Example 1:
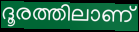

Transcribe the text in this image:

ദൂരത്തിലാണ്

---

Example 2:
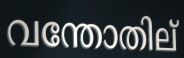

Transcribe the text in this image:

വന്തോതില്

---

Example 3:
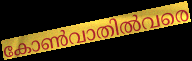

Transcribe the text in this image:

കോൺവാതിൽവരെ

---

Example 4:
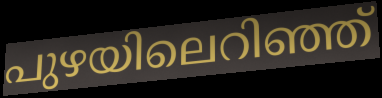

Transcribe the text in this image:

പുഴയിലെറിഞ്ഞ്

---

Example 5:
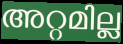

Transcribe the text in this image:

അറ്റമില്ല